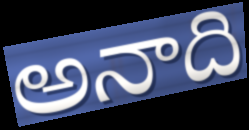
అనాది